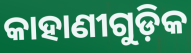
କାହାଣୀଗୁଡ଼ିକ